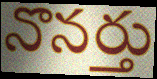
నొనర్తు